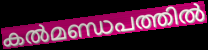
കൽമണ്ഡപത്തിൽ